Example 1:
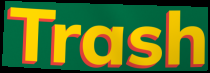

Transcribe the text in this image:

Trash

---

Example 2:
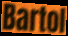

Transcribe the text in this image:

Bartol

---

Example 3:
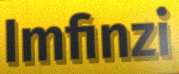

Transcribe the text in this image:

Imfinzi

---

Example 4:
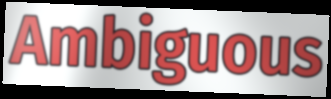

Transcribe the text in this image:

Ambiguous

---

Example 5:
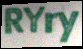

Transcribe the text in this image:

RYry